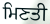
ਮਿਣਤੀ